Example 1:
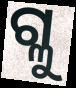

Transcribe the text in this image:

ଗ୍ଳୁ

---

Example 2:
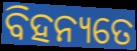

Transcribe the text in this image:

ବିହନ୍ୟତେ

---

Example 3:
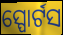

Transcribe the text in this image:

ସ୍ପୋର୍ଟସ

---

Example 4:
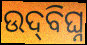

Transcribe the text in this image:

ଉଦ୍‌ବିଘ୍ନ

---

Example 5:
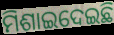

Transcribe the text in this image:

ମିଶାଇଦେଇଛି